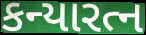
કન્યારત્ન